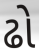
ઢો